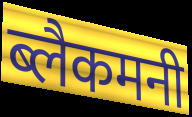
ब्‍लैकमनी